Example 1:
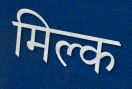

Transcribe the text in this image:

मिल्क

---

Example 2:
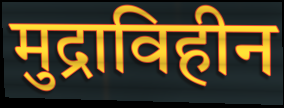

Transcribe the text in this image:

मुद्राविहीन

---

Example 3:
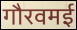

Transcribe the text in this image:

गौरवमई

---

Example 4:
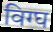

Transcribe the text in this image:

विग्घ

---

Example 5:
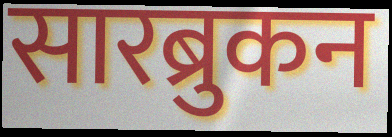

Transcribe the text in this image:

सारब्रुकन